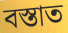
বস্তাত